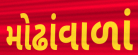
મોઢાંવાળાં